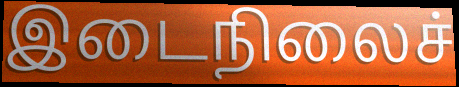
இடைநிலைச்